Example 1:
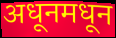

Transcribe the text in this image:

अधूनमधून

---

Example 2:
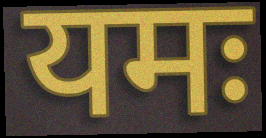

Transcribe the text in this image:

यमः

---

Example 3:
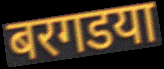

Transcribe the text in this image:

बरगडया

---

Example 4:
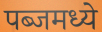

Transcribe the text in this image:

पब्जमध्ये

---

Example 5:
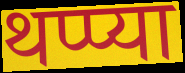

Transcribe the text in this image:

थप्प्या